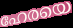
ഹേരയെ